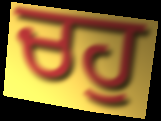
ਚਹੁ